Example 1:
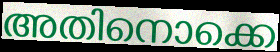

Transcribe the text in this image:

അതിനൊക്കെ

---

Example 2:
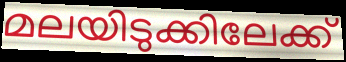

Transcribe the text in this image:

മലയിടുക്കിലേക്ക്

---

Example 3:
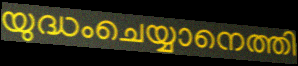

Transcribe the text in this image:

യുദ്ധംചെയ്യാനെത്തി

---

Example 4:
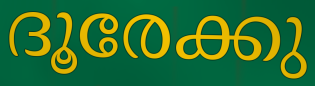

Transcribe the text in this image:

ദൂരേക്കു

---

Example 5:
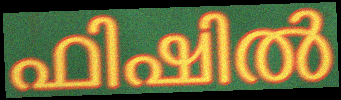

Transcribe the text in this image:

ഫിഷിൽ